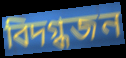
বিদগ্ধজন